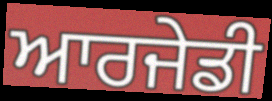
ਆਰਜੇਡੀ